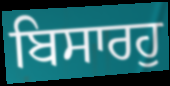
ਬਿਸਾਰਹੁ